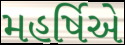
મહર્ષિએ